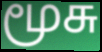
மூசு